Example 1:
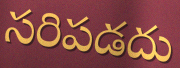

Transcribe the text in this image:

సరిపడదు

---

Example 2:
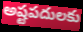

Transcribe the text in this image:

అష్టపదులకు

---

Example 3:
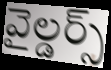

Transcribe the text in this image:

వైల్డర్స్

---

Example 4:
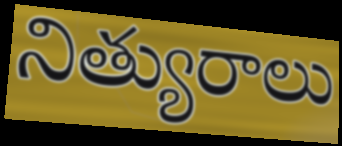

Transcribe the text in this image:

నిత్యురాలు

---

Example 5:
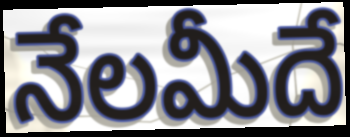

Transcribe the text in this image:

నేలమీదే